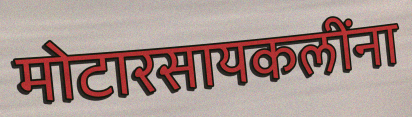
मोटारसायकलींना